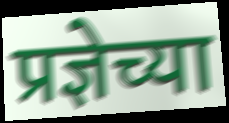
प्रज्ञेच्या